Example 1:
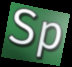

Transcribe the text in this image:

Sp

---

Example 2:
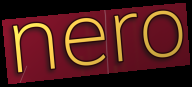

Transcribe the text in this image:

nero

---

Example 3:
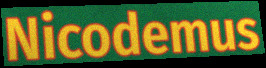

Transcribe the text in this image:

Nicodemus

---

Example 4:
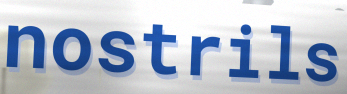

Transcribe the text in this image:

nostrils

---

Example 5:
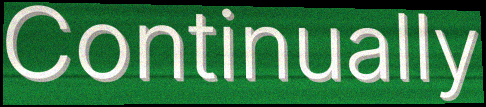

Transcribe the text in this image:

Continually